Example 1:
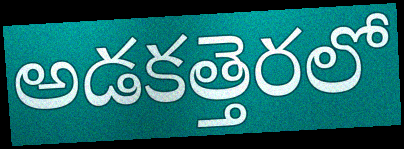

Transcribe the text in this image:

అడకత్తెరలో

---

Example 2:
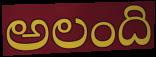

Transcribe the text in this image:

అలంది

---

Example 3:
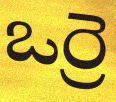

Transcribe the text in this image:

ఒర్రె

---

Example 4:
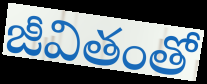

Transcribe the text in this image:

జీవితంతో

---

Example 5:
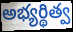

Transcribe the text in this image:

అభ్యర్థిత్వ